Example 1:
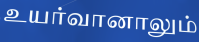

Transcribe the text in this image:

உயர்வானாலும்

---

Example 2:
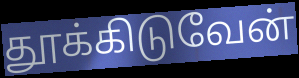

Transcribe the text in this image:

தூக்கிடுவேன்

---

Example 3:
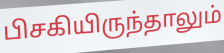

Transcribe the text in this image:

பிசகியிருந்தாலும்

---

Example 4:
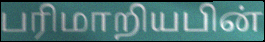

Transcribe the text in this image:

பரிமாறியபின்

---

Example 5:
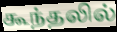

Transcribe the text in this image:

கூந்தலில்